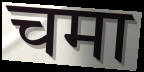
चमा